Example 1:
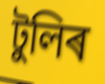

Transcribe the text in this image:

টুলিৰ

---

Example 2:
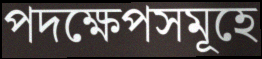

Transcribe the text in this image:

পদক্ষেপসমূহে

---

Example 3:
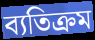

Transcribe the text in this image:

ব্যতিক্ৰম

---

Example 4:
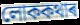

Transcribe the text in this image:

লোককথাৰ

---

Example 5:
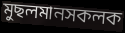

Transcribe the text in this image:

মুছলমানসকলক